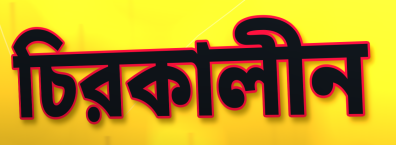
চিরকালীন